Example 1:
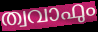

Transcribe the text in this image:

ത്വവാഫും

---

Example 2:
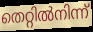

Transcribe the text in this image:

തെറ്റിൽനിന്ന്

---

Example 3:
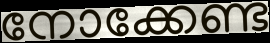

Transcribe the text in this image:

നോക്കേണ്ട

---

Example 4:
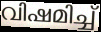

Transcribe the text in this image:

വിഷമിച്ച്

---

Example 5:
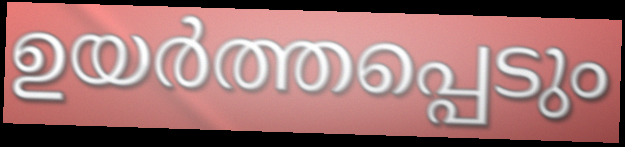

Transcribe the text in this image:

ഉയർത്തപ്പെടും